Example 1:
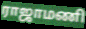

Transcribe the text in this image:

ராஜாமணி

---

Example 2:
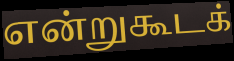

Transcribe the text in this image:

என்றுகூடக்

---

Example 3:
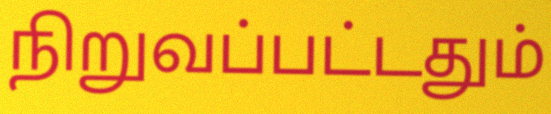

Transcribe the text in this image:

நிறுவப்பட்டதும்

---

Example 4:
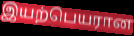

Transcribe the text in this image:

இயற்பெயரான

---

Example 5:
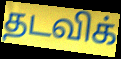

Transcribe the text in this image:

தடவிக்